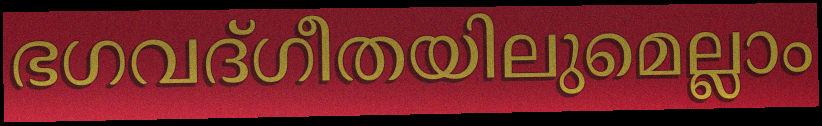
ഭഗവദ്ഗീതയിലുമെല്ലാം